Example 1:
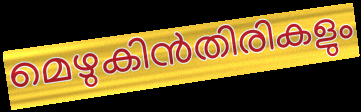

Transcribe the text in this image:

മെഴുകിൻതിരികളും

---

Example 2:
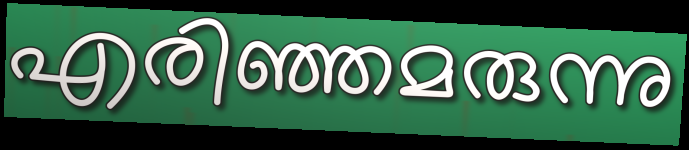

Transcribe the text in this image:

എരിഞ്ഞമരുന്നു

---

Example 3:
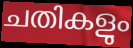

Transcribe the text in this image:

ചതികളും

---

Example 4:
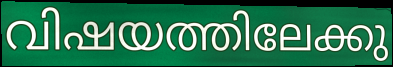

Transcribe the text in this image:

വിഷയത്തിലേക്കു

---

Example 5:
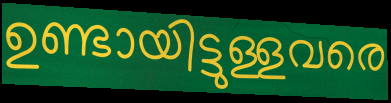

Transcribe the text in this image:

ഉണ്ടായിട്ടുള്ളവരെ